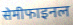
सेमीफाइनल